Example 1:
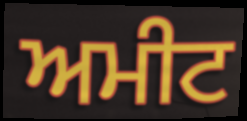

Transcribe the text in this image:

ਅਮੀਟ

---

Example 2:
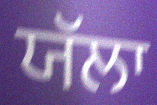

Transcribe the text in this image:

ਯੱਲਾ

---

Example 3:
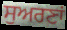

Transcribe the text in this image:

ਸੁਅਰਣਾਂ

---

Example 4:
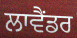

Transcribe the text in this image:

ਲਾਵੈਂਡਰ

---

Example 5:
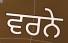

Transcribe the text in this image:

ਵਰਨੇ